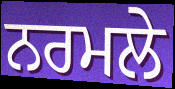
ਨਰਮਲੇ